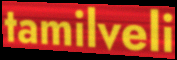
tamilveli